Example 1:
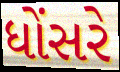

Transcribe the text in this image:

ધોંસરે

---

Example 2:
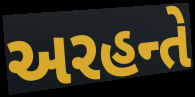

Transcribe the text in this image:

અરહન્તે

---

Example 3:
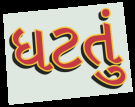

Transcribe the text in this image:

ધટતું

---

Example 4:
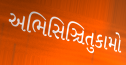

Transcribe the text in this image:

અભિસિઞ્ચિતુકામો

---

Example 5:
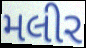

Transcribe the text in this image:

મલીર